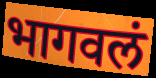
भागवलं